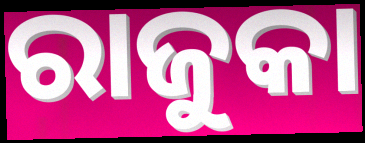
ରାଜୁକା